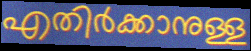
എതിർക്കാനുള്ള